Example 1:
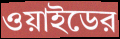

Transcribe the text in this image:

ওয়াইডের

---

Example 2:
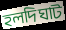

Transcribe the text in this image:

হলদিঘাট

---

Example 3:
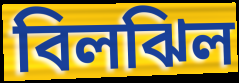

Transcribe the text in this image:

বিলঝিল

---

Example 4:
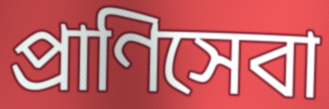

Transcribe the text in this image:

প্রাণিসেবা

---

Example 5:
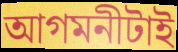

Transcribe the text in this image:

আগমনীটাই